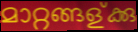
മാറ്റങ്ങള്ക്കു